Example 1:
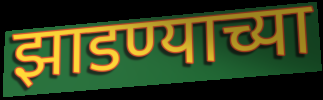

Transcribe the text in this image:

झाडण्याच्या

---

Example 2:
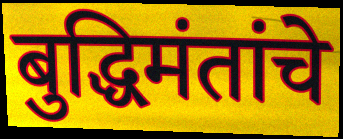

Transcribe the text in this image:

बुद्धिमंतांचे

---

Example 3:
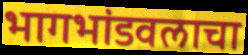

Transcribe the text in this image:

भागभांडवलाचा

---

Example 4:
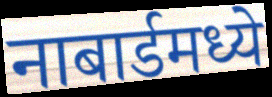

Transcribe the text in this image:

नाबार्डमध्ये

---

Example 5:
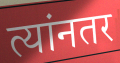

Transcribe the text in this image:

त्यांनतर